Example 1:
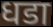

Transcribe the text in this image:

धडा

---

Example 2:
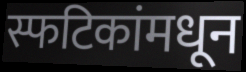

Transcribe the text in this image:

स्फटिकांमधून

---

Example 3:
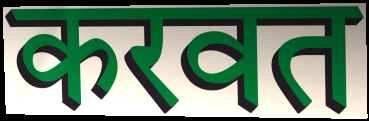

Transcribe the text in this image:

करवत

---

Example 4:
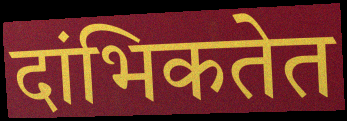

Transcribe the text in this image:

दांभिकतेत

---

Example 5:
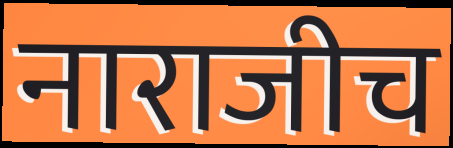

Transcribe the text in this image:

नाराजीच